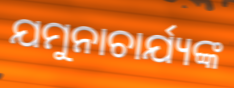
ଯମୁନାଚାର୍ଯ୍ୟଙ୍କ